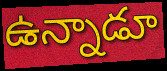
ఉన్నాడూ